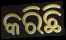
କରିଛି